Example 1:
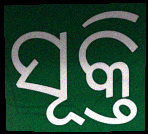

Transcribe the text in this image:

ସୂକ୍ତି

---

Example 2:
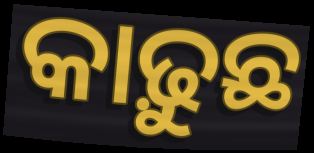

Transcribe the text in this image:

କାଢ଼ୁଛ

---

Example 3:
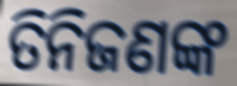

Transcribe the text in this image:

ତିନିଜଣଙ୍କ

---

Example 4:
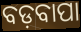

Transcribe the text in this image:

ବଡ଼ବାପା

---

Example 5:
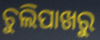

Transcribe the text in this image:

ଚୁଲିପାଖରୁ